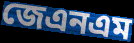
জেএনএম